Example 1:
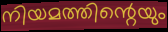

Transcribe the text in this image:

നിയമത്തിന്റെയും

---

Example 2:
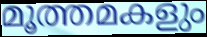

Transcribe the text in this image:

മൂത്തമകളും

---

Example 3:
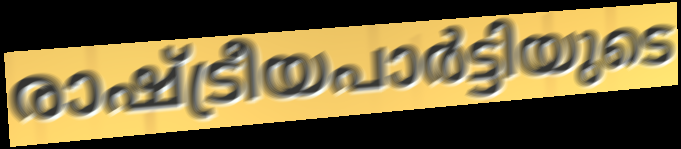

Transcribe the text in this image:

രാഷ്ട്രീയപാർട്ടിയുടെ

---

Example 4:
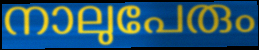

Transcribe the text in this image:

നാലുപേരും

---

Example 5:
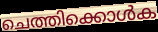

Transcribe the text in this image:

ചെത്തിക്കൊൾക